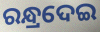
ରନ୍ଧ୍ରଦେଇ